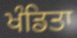
ਖੰਡਿਤਾ